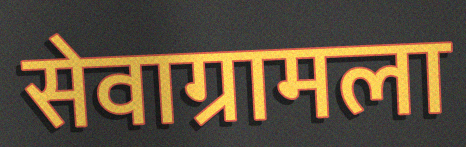
सेवाग्रामला